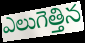
ఎలుగెత్తిన